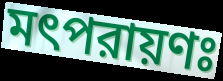
মৎপরায়ণঃ